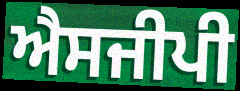
ਐਸਜੀਪੀ